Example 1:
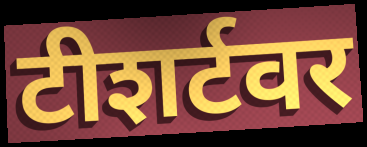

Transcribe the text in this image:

टीशर्टवर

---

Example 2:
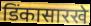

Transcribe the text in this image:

डिंकासारखे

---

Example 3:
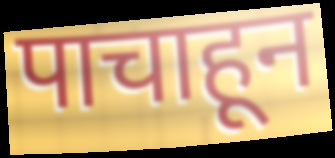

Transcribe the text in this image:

पाचाहून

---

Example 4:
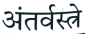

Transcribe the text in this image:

अंतर्वस्त्रे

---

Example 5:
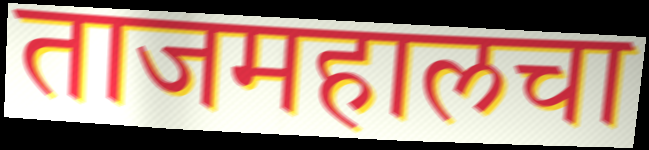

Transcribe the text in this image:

ताजमहालचा